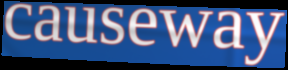
causeway